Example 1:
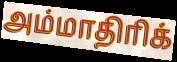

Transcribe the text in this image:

அம்மாதிரிக்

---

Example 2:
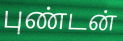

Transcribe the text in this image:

புண்டன்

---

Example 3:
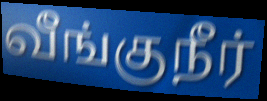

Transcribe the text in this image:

வீங்குநீர்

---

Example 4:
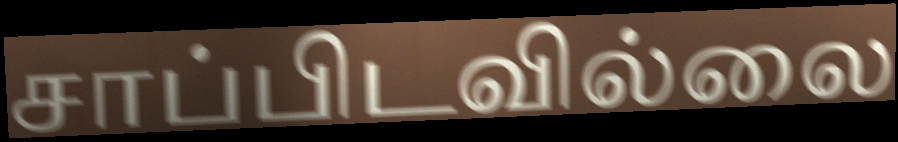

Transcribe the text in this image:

சாப்பிடவில்லை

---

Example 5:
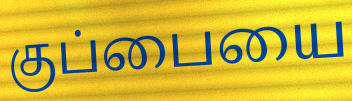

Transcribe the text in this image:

குப்பையை